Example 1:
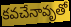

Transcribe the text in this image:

కవచేనావృతో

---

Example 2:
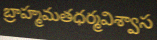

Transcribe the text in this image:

బ్రాహ్మమతధర్మవిశ్వాస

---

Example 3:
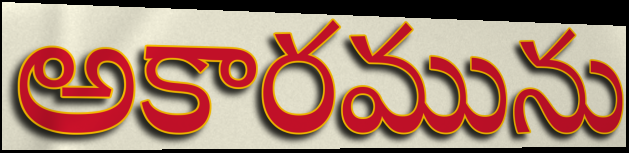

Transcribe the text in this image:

అకారమును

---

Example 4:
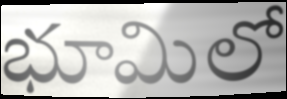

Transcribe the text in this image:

భూమిలో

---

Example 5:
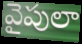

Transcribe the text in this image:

వైపులా